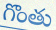
గొంతు